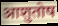
आशुतोष